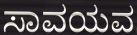
ಸಾವಯವ